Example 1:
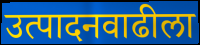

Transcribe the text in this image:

उत्पादनवाढीला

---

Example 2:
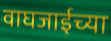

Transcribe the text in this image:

वाघजाईच्या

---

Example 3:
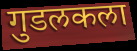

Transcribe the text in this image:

गुडलकला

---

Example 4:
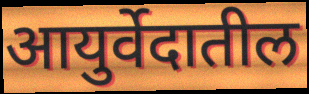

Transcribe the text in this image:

आयुर्वेदातील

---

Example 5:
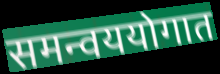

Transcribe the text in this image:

समन्वययोगात